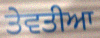
ਤੇਵਤੀਆ